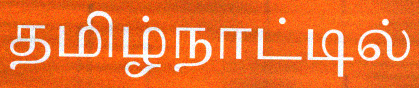
தமிழ்நாட்டில்